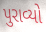
પુરાવ્યો